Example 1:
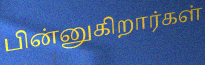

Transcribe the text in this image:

பின்னுகிறார்கள்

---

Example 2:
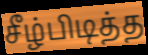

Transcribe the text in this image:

சீழ்பிடித்த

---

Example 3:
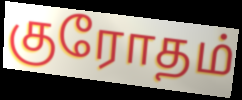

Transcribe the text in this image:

குரோதம்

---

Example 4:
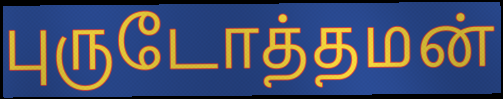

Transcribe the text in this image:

புருடோத்தமன்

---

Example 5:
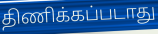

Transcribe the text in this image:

திணிக்கப்படாது